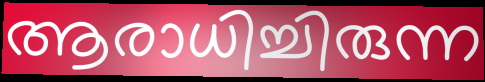
ആരാധിച്ചിരുന്ന